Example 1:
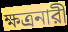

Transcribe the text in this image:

ক্ষত্রনারী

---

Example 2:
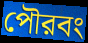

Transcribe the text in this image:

পৌরবং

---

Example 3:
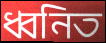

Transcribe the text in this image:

ধ্বনিত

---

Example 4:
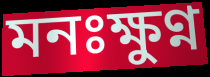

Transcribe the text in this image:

মনঃক্ষুণ্ন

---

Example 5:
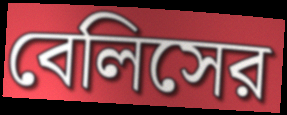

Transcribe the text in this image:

বেলিসের